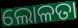
ଲୋଳତା